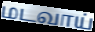
மடவாய்